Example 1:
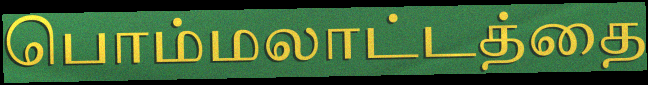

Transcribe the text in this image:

பொம்மலாட்டத்தை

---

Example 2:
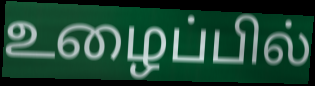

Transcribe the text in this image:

உழைப்பில்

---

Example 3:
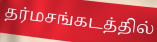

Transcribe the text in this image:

தர்மசங்கடத்தில்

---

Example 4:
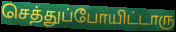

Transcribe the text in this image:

செத்துப்போயிட்டாரு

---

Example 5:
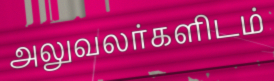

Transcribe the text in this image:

அலுவலர்களிடம்